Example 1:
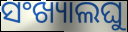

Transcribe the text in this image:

ସଂଖ୍ୟାଲଘୁ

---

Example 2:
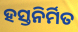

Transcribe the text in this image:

ହସ୍ତନିର୍ମିତ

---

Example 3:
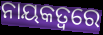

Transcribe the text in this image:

ନାୟକତ୍ବରେ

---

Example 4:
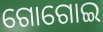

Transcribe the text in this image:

ଗୋଗୋଇ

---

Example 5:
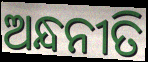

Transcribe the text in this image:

ଅନ୍ଧନୀତି